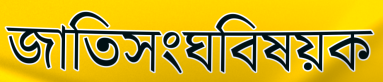
জাতিসংঘবিষয়ক